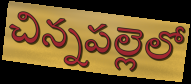
చిన్నపల్లెలో